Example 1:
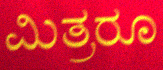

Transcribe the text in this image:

ಮಿತ್ರರೂ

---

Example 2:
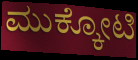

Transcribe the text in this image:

ಮುಕ್ಕೋಟಿ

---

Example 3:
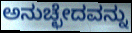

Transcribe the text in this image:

ಅನುಚ್ಛೇದವನ್ನು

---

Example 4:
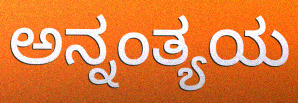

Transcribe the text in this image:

ಅನ್ನಂತ್ಯಯ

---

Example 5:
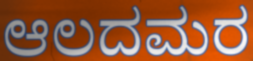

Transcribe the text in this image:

ಆಲದಮರ